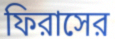
ফিরাসের